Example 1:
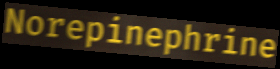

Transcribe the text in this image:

Norepinephrine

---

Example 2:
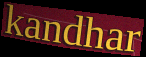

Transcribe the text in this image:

kandhar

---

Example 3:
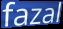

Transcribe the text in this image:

fazal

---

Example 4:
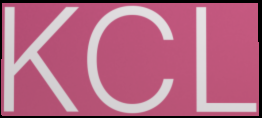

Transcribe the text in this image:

KCL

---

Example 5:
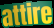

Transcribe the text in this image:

attire